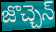
జొచ్చెన్